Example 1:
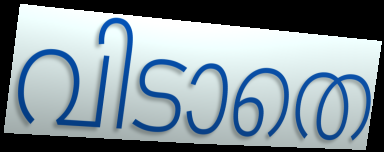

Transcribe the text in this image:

വിടാതെ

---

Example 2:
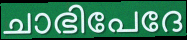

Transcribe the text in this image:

ചാഭിപേദേ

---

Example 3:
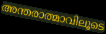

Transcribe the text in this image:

അന്തരാത്മാവിലൂടെ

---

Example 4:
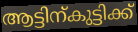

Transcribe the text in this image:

ആട്ടിന്കുട്ടിക്ക്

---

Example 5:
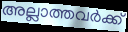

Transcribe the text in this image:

അല്ലാത്തവർക്ക്